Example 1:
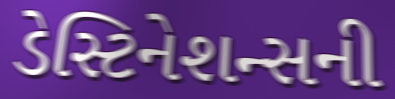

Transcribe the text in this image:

ડેસ્ટિનેશન્સની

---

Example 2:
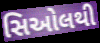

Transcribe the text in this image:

સિઓલથી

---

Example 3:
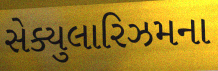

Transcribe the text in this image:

સેક્યુલારિઝમના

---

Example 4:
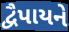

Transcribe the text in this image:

દ્વૈપાયને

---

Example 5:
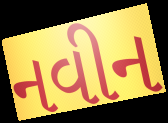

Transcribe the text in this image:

નવીન